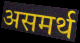
असमर्थ